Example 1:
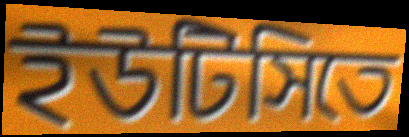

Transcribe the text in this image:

ইউটিসিতে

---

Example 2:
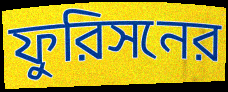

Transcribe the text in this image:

ফুরিসনের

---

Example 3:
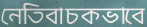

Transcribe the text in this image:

নেতিবাচকভাবে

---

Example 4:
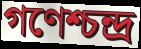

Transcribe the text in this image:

গণেশ্চন্দ্র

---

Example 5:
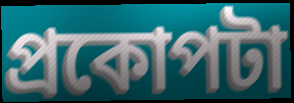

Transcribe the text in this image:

প্রকোপটা